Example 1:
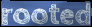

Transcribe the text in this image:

rooted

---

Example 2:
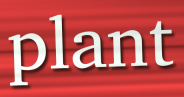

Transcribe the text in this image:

plant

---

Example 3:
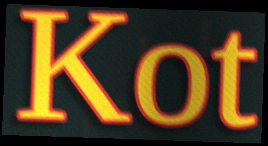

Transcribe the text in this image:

Kot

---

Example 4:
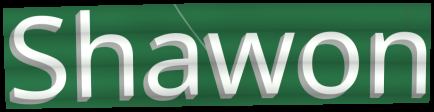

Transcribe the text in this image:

Shawon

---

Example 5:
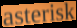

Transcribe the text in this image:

asterisk